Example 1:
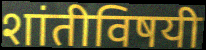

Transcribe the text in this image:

शांतीविषयी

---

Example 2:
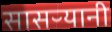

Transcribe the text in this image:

सासऱ्यानी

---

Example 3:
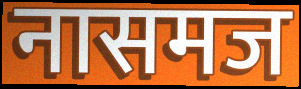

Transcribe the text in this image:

नासमज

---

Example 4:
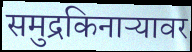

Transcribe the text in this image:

समुद्रकिनाऱ्यावर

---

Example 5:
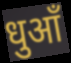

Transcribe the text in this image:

धुआँ